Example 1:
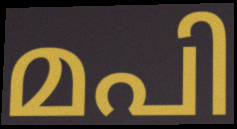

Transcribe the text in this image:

മപി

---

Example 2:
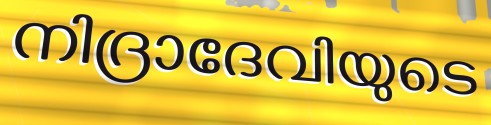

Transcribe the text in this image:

നിദ്രാദേവിയുടെ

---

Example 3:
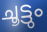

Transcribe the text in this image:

ചൂട്ടും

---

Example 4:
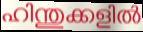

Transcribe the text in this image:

ഹിന്തുക്കളിൽ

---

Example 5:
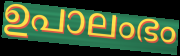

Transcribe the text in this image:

ഉപാലംഭം